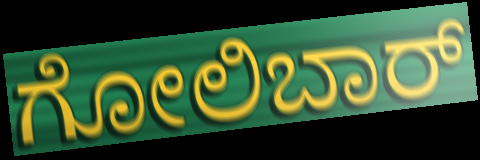
ಗೋಲಿಬಾರ್